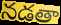
నడతా